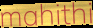
mahithi